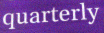
quarterly